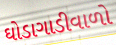
ઘોડાગાડીવાળો